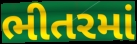
ભીતરમાં